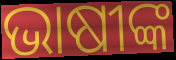
ଭାଷୀଙ୍କ